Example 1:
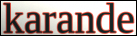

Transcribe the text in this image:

karande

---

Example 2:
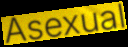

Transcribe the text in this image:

Asexual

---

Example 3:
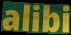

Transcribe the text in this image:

alibi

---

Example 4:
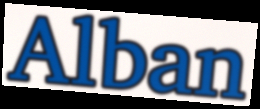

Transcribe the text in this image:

Alban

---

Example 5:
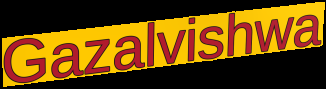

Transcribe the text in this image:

Gazalvishwa